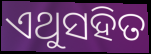
ଏଥୁସହିତ